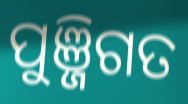
ପୁଞ୍ଜିଗତ